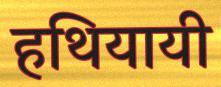
हथियायी